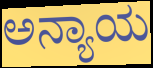
ಅನ್ಯಾಯ